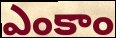
ఎంకాం